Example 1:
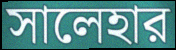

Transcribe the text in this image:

সালেহার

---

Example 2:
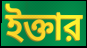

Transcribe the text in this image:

ইক্তার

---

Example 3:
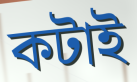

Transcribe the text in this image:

কটাই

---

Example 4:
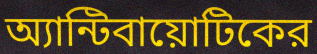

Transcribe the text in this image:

অ্যান্টিবায়োটিকের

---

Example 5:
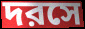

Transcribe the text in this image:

দরসে